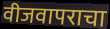
वीजवापराचा